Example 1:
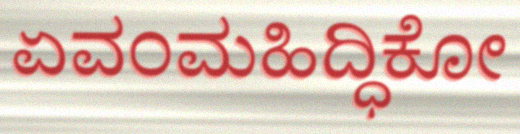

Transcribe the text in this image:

ಏವಂಮಹಿದ್ಧಿಕೋ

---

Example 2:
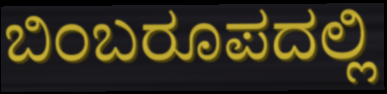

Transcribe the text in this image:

ಬಿಂಬರೂಪದಲ್ಲಿ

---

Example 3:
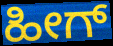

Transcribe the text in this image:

ಹೀಗ್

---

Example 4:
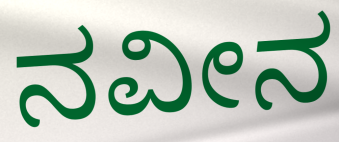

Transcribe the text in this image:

ನವೀನ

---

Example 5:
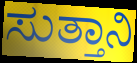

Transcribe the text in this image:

ಸುತ್ತಾನಿ